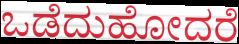
ಒಡೆದುಹೋದರೆ